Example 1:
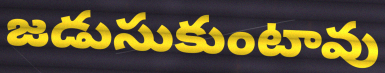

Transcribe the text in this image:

జడుసుకుంటావు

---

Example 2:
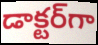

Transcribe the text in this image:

డాక్టర్‌గా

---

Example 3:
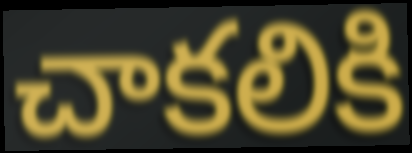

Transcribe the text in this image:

చాకలికి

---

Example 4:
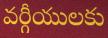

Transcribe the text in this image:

వర్గీయులకు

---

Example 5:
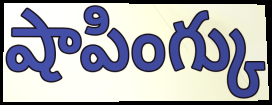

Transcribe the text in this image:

షాపింగ్కు